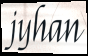
jyhan